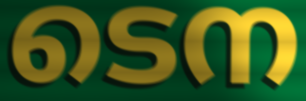
ടെന